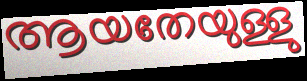
ആയതേയുള്ളു